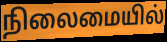
நிலைமையில்